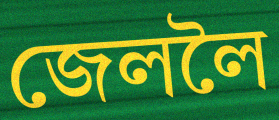
জেললৈ